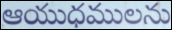
ఆయుధములను